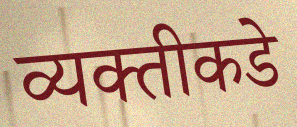
व्यक्तीकडे